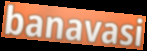
banavasi